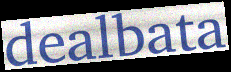
dealbata